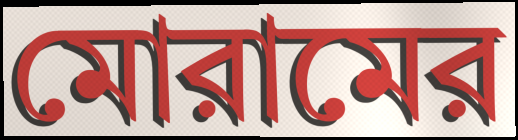
মোরামের